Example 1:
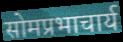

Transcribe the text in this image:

सोमप्रभाचार्य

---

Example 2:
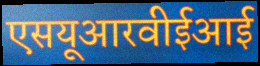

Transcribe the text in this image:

एसयूआरवीईआई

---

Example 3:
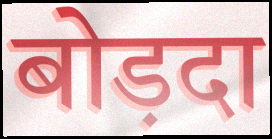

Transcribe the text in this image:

बोड़दा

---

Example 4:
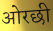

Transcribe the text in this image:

ओरछी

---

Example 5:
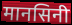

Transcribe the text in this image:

मानसिनी